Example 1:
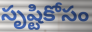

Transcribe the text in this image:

సృష్టికోసం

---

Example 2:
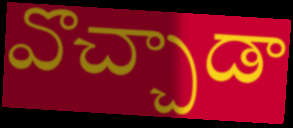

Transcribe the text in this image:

వొచ్చాడా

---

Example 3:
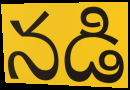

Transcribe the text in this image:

నడి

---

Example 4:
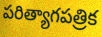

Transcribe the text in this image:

పరిత్యాగపత్రిక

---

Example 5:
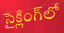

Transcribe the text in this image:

సైక్లింగ్‌లో